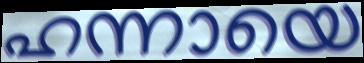
ഹന്നായെ